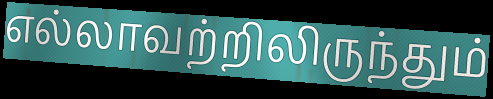
எல்லாவற்றிலிருந்தும்